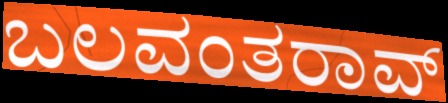
ಬಲವಂತರಾವ್